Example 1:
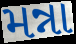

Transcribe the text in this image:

મન્ના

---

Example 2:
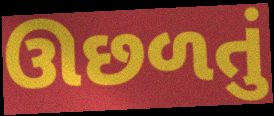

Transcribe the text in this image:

ઊછળતું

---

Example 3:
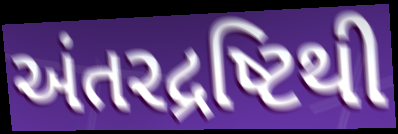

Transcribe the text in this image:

અંતરદ્રષ્ટિથી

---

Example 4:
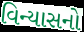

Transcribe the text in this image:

વિન્યાસનો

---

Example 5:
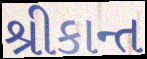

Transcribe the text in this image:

શ્રીકાન્ત